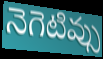
నెగెటివ్సు